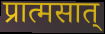
प्रात्मसात्